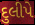
દુલીપે